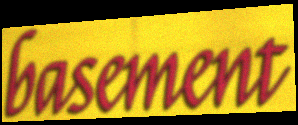
basement